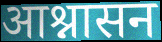
आश्नासन